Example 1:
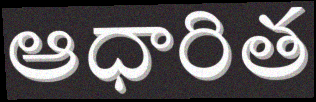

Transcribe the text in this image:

ఆధారిత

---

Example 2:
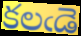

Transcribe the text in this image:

కలఁడె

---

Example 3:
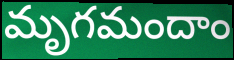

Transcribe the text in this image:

మృగమందాం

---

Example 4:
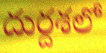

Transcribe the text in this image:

దుర్దశలో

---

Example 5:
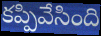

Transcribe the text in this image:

కప్పివేసింది